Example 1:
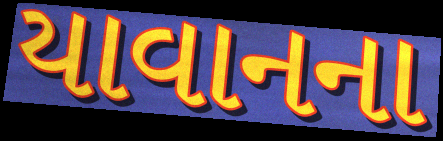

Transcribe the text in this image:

યાવાનના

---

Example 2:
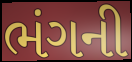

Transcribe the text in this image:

ભંગની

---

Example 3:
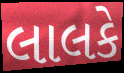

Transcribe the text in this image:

લાલકે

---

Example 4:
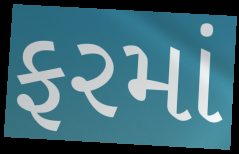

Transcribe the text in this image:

ફરમાં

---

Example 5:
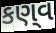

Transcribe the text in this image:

કણ્‌વ